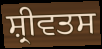
ਸ਼੍ਰੀਵਤਸ